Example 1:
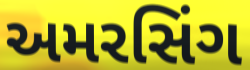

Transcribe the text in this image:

અમરસિંગ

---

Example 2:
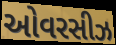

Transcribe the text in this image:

ઓવરસીઝ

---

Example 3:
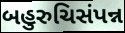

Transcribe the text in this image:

બહુરુચિસંપન્ન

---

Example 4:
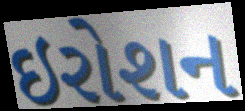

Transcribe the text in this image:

ઇરોશન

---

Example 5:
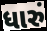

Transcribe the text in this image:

ધારું